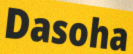
Dasoha